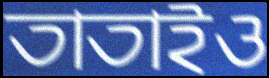
তাতাইও